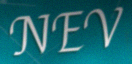
NEV